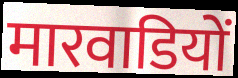
मारवाडियों